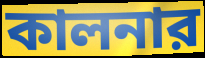
কালনার